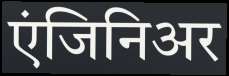
एंजिनिअर